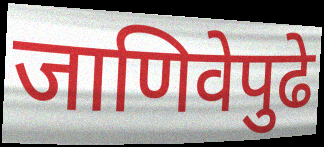
जाणिवेपुढे